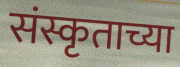
संस्कृताच्या